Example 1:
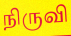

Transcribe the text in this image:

நிருவி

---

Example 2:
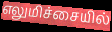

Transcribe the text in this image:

எலுமிச்சையில்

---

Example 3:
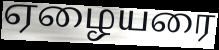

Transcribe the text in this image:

ஏழையரை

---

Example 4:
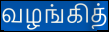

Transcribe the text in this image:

வழங்கித்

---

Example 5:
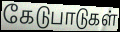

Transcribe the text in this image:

கேடுபாடுகள்